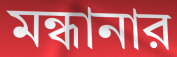
মন্ধানার